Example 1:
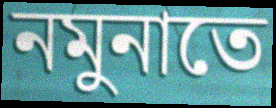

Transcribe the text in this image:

নমুনাতে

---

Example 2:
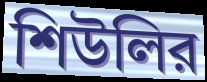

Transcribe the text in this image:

শিউলির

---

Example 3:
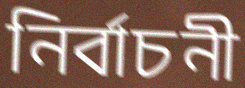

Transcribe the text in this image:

নির্বাচনী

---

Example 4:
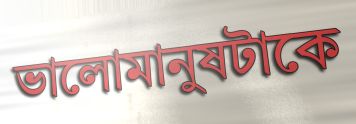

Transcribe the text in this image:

ভালোমানুষটাকে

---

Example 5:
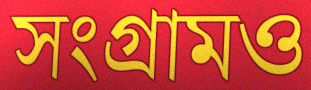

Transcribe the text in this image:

সংগ্রামও